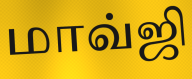
மாவ்ஜி